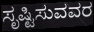
ಸೃಷ್ಟಿಸುವವರ